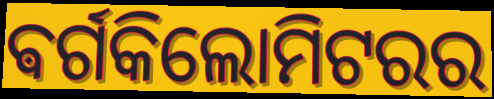
ଵର୍ଗକିଲୋମିଟରର